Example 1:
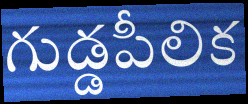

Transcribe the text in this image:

గుడ్డపీలిక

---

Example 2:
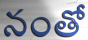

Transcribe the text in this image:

నంతో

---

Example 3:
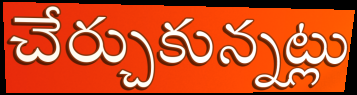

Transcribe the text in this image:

చేర్చుకున్నట్లు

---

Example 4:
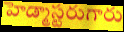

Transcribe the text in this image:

హెడ్మాస్టరుగారు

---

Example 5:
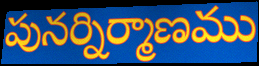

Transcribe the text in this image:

పునర్నిర్మాణము